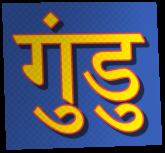
गुंडु